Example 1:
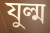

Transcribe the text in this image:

যুল্ম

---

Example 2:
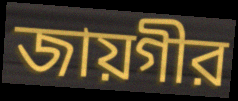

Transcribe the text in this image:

জায়গীর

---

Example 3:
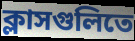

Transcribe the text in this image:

ক্লাসগুলিতে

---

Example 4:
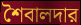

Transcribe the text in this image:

শৈবালদার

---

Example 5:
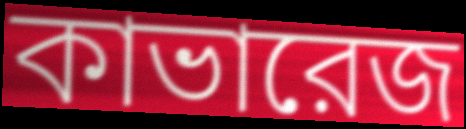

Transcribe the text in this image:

কাভারেজ